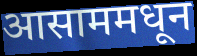
आसाममधून